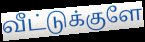
வீட்டுக்குளே